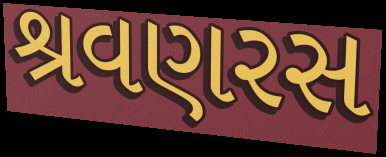
શ્રવણરસ